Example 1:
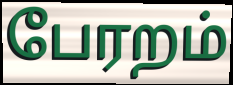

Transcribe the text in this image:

பேரறம்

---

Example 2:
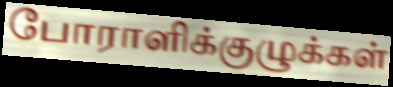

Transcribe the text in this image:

போராளிக்குழுக்கள்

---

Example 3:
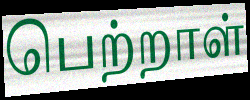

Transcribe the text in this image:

பெற்றாள்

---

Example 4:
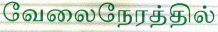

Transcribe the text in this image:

வேலைநேரத்தில்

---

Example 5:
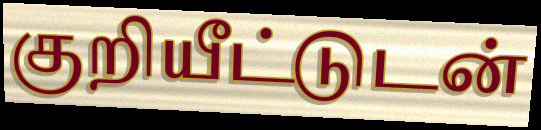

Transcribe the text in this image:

குறியீட்டுடன்